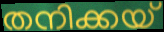
തനിക്കയ്